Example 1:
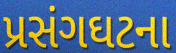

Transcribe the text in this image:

પ્રસંગઘટના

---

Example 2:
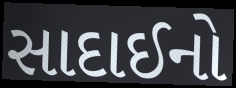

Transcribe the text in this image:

સાદાઈનો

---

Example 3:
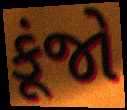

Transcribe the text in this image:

કૂંજો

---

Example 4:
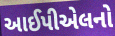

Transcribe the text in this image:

આઈપીએલનો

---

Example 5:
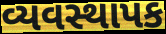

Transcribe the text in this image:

વ્યવસ્થાપક